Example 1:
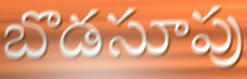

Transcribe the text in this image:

బొడసూపు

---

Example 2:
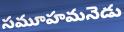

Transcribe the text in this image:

సమూహమనెడు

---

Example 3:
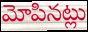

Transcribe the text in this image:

మోపినట్లు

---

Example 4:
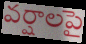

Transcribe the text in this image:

వర్షాలపై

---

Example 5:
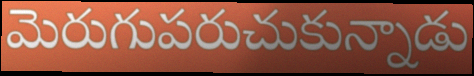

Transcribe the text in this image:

మెరుగుపరుచుకున్నాడు